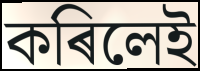
কৰিলেই